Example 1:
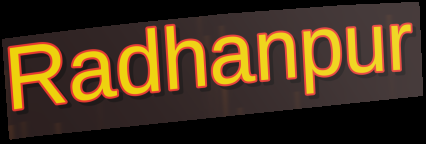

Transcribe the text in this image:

Radhanpur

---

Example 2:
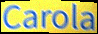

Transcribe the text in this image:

Carola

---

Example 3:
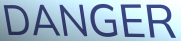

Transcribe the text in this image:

DANGER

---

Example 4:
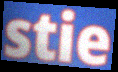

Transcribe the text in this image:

stie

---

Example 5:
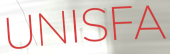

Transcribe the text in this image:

UNISFA